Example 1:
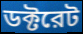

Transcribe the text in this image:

ডক্টরেট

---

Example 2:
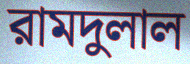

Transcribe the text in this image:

রামদুলাল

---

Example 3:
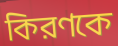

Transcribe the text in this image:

কিরণকে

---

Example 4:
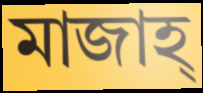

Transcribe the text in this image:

মাজাহ্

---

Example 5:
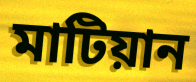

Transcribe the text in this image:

মাটিয়ান